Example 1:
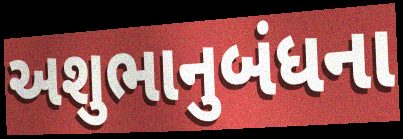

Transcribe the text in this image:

અશુભાનુબંધના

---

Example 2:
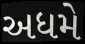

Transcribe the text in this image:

અધમે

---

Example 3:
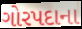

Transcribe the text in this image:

ગોરપદાના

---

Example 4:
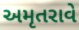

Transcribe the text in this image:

અમૃતરાવે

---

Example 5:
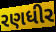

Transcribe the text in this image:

રણધીર